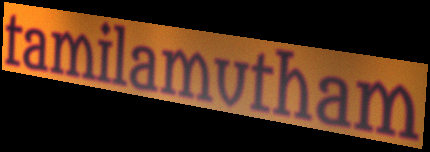
tamilamutham